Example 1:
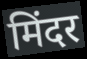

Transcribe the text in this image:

मिंदर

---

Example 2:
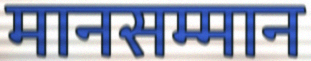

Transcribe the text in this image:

मानसम्मान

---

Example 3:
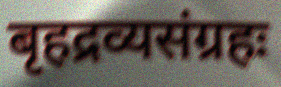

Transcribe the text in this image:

बृहद्रव्यसंग्रहः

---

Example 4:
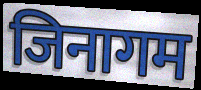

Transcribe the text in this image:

जिनागम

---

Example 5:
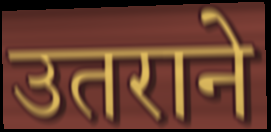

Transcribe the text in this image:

उतराने